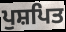
ਪੁਸ਼ਪਿਤ